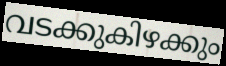
വടക്കുകിഴക്കും